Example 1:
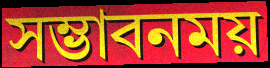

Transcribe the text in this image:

সম্ভাবনময়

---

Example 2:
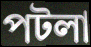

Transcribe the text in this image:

পটলা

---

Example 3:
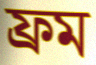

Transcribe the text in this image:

ফ্রম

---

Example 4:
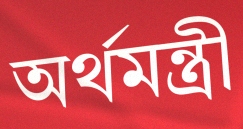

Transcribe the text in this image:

অর্থমন্ত্রী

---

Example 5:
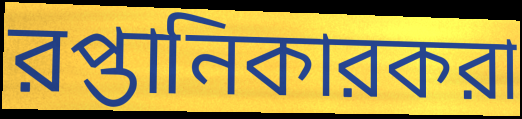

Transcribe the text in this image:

রপ্তানিকারকরা